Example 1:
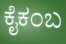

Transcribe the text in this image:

ಕೈಕಂಬ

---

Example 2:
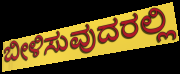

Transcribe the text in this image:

ಬೀಳಿಸುವುದರಲ್ಲಿ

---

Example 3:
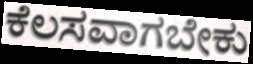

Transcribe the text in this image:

ಕೆಲಸವಾಗಬೇಕು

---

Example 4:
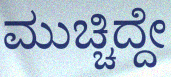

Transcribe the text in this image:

ಮುಚ್ಚಿದ್ದೇ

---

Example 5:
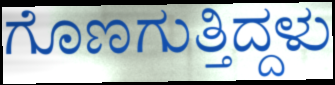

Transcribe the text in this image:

ಗೊಣಗುತ್ತಿದ್ದಳು